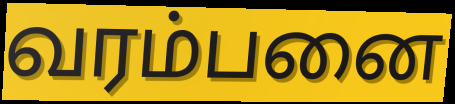
வரம்பனை